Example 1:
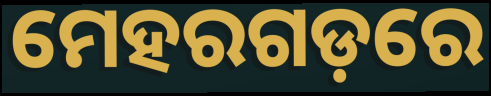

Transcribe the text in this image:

ମେହରଗଡ଼ରେ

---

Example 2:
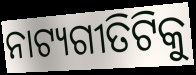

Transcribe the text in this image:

ନାଟ୍ୟଗୀତିଟିକୁ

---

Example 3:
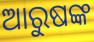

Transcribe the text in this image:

ଆରୁଷଙ୍କ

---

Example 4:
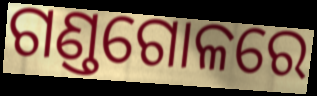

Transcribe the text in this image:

ଗଣ୍ଡଗୋଳରେ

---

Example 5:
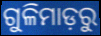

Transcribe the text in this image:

ଗୁଳିମାଡ଼ରୁ